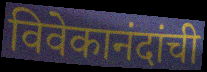
विवेकानंदांची